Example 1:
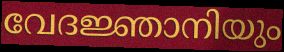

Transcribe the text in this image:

വേദജ്ഞാനിയും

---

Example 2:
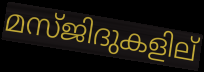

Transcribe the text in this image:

മസ്ജിദുകളില്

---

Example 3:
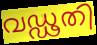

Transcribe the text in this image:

വഡ്ഢതി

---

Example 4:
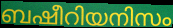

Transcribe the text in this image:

ബഷീറിയനിസം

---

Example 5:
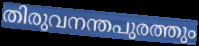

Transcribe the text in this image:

തിരുവനന്തപുരത്തും